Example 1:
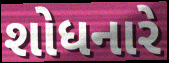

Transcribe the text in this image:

શોધનારે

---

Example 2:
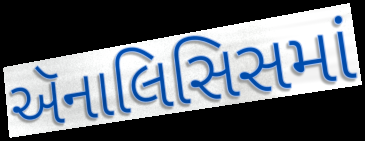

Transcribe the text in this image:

ઍનાલિસિસમાં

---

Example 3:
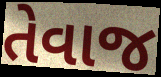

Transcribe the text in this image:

તેવાજ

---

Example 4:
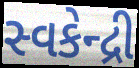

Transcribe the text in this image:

સ્વકેન્દ્રી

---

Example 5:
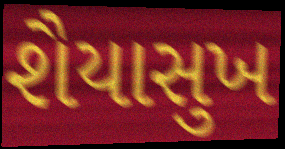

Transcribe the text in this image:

શૈયાસુખ